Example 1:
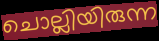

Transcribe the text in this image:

ചൊല്ലിയിരുന്ന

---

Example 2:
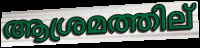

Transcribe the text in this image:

ആശ്രമത്തില്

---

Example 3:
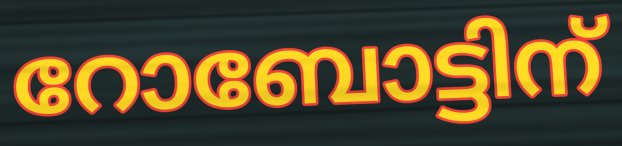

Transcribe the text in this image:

റോബോട്ടിന്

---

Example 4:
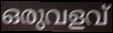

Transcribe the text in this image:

ഒരുവളവ്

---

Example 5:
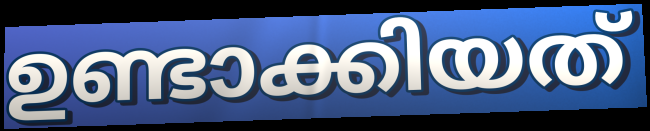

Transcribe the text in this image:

ഉണ്ടാക്കിയത്